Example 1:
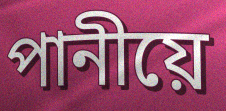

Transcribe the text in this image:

পানীয়ে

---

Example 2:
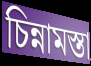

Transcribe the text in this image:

চিন্নামস্তা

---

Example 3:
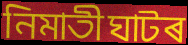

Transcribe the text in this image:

নিমাতীঘাটৰ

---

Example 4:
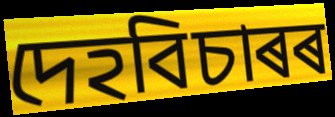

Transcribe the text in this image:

দেহবিচাৰৰ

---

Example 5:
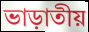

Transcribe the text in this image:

ভাড়াতীয়